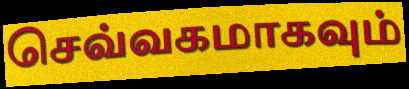
செவ்வகமாகவும்